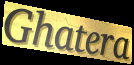
Ghatera